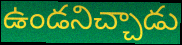
ఉండనిచ్చాడు